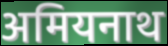
अमियनाथ